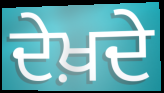
ਦੇਖ਼ਦੇ